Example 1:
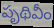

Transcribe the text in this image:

పృథివీం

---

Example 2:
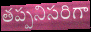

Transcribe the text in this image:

తప్పనిసరిగా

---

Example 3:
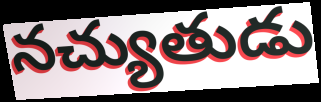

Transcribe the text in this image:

నచ్యుతుడు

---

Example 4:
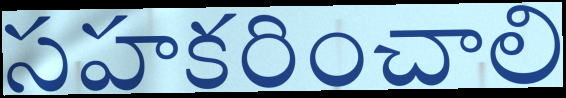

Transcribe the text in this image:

సహకరించాలి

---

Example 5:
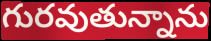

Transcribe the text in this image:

గురవుతున్నాను